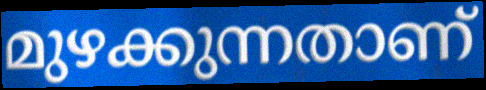
മുഴക്കുന്നതാണ്